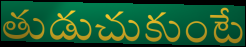
తుడుచుకుంటే